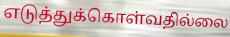
எடுத்துக்கொள்வதில்லை